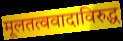
मूलतत्ववादाविरुद्ध